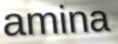
amina